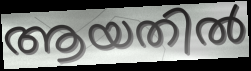
ആയതിൽ